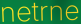
netrne